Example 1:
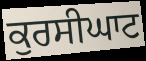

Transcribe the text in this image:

ਕੁਰਸੀਘਾਟ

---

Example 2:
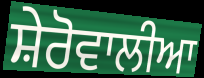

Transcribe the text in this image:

ਸ਼ੇਰੋਵਾਲੀਆ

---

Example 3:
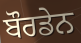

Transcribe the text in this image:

ਬੌਰਡੇਨ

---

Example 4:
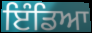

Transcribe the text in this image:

ਇੰਡਿਆ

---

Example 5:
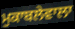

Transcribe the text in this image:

ਮੁਕਾਬਲੇਵਾਲਾ